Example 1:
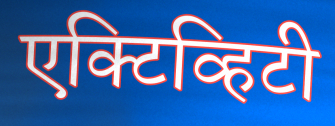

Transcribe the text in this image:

एक्टिव्हिटी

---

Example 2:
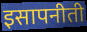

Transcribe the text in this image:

इसापनीती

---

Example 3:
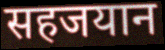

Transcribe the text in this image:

सहजयान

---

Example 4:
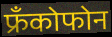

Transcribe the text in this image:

फ्रँकोफोन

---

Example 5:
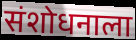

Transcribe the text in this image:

संशोधनाला